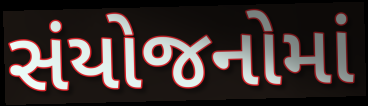
સંયોજનોમાં